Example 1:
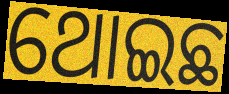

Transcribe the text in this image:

ଥୋଇଛ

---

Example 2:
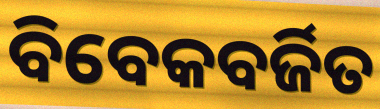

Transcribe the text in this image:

ବିବେକବର୍ଜିତ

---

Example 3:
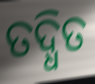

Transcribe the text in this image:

ତଦ୍ଧିତ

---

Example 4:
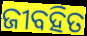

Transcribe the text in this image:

ଜୀବହିତ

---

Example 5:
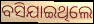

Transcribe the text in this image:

ବସିଯାଇଥିଲେ